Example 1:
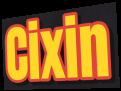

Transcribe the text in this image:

Cixin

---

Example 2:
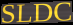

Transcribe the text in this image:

SLDC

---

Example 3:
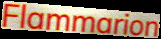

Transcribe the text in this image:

Flammarion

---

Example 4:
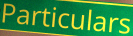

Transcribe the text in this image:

Particulars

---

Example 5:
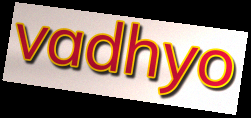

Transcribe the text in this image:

vadhyo